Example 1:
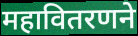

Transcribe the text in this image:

महावितरणने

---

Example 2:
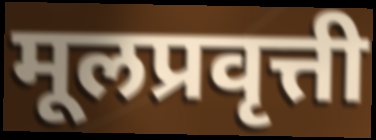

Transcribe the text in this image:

मूलप्रवृत्ती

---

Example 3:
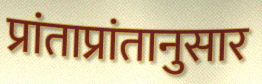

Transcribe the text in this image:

प्रांताप्रांतानुसार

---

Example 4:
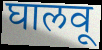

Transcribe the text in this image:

घालवू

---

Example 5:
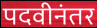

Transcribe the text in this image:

पदवीनंतर